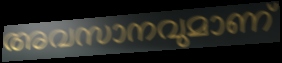
അവസാനവുമാണ്